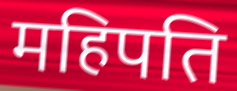
महिपति